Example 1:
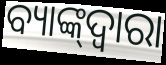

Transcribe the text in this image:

ବ୍ୟାଙ୍କ୍‌ଦ୍ୱାରା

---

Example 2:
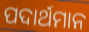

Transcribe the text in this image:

ପଦାର୍ଥମାନ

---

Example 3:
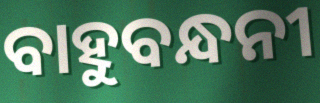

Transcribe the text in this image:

ବାହୁବନ୍ଧନୀ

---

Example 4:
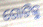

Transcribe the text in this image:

ଗୋଟିକୁ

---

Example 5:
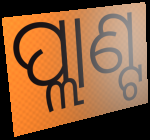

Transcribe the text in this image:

ପ୍ଲାଣ୍ଟ